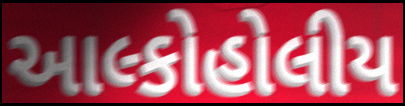
આલ્કોહોલીય